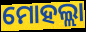
ମୋହଲ୍ଲା